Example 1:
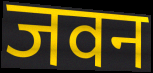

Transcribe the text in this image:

जवन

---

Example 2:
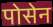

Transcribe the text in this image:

पोसेन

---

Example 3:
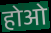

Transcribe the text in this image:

होओ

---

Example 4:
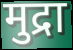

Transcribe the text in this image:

मुद्रा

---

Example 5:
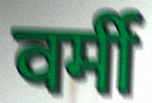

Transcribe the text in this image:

वर्मी